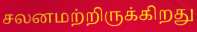
சலனமற்றிருக்கிறது